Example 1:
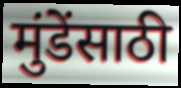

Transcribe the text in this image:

मुंडेंसाठी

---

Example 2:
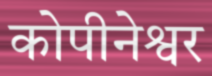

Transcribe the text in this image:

कोपीनेश्वर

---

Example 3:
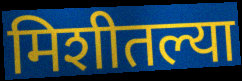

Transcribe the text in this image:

मिशीतल्या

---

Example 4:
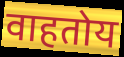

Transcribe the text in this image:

वाहतोय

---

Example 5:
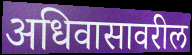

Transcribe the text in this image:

अधिवासावरील